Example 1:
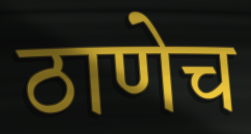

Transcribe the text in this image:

ठाणेच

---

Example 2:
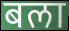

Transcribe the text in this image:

बला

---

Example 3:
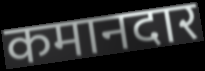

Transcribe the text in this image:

कमानदार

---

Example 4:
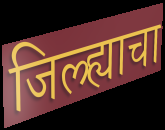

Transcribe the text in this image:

जिल्ह्याचा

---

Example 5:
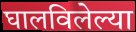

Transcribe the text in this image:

घालविलेल्या